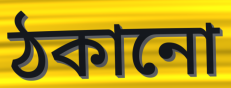
ঠকানো